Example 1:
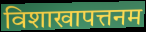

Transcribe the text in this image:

विशाखापत्तनम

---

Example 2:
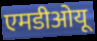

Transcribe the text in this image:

एमडीओयू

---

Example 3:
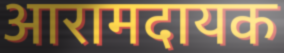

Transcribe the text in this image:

आरामदायक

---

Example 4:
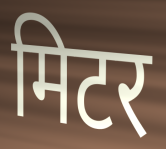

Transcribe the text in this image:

मिटर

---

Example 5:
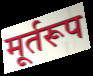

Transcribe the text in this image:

मूर्तरूप